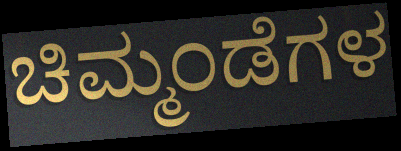
ಚಿಮ್ಮಂಡೆಗಳ